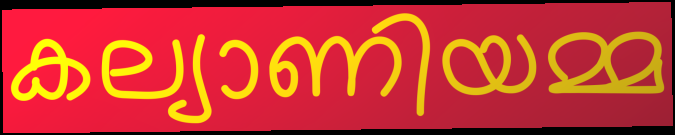
കല്യാണിയമ്മ